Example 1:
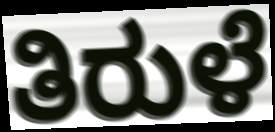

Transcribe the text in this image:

ತಿರುಳೆ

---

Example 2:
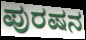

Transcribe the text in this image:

ಪುರಷನ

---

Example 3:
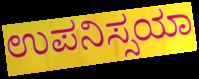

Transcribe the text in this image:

ಉಪನಿಸ್ಸಯಾ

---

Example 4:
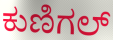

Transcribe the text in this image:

ಕುಣಿಗಲ್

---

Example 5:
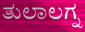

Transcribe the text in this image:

ತುಲಾಲಗ್ನ